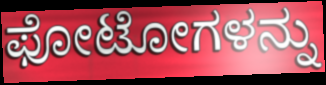
ಫೋಟೋಗಳನ್ನು